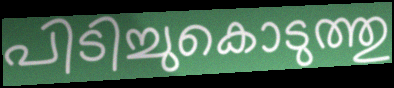
പിടിച്ചുകൊടുത്തു